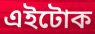
এইটোক